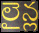
లైన్ల